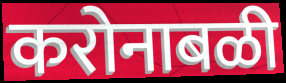
करोनाबळी